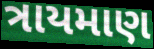
ત્રાયમાણ